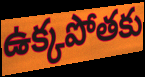
ఉక్కపోతకు